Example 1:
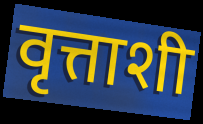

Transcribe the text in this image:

वृत्ताशी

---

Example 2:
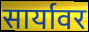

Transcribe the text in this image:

सार्यावर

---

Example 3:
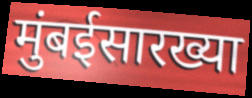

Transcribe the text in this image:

मुंबईसारख्या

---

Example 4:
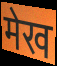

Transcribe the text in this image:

मेख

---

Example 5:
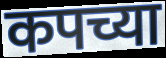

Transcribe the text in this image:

कपच्या